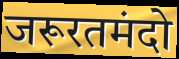
जरूरतमंदो